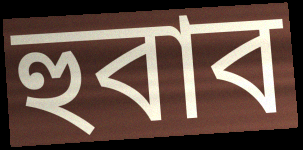
হুবাব